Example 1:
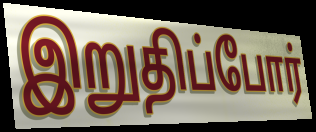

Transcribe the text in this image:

இறுதிப்போர்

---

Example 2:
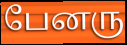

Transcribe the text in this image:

பேனரு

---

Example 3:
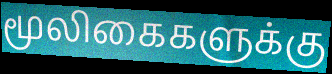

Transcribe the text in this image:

மூலிகைகளுக்கு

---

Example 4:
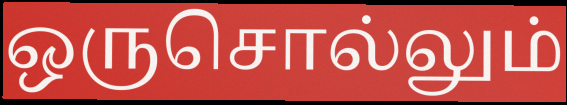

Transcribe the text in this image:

ஒருசொல்லும்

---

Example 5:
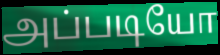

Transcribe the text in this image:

அப்படியோ